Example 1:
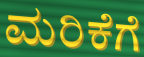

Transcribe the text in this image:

ಮರಿಕೆಗೆ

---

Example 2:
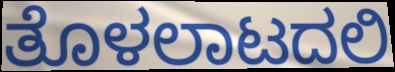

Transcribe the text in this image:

ತೊಳಲಾಟದಲಿ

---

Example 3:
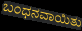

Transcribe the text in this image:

ಬಂಧನವಾಯಿತು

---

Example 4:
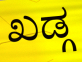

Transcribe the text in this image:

ಖಡ್ಗ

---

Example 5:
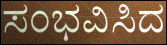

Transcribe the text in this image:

ಸಂಭವಿಸಿದ